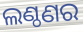
ଲଣ୍ଠଣର